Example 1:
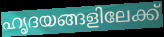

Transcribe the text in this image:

ഹൃദയങ്ങളിലേക്ക്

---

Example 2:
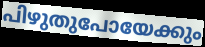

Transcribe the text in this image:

പിഴുതുപോയേക്കും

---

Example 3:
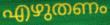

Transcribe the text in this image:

എഴുതണം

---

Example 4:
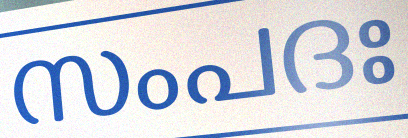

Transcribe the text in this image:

സംപദഃ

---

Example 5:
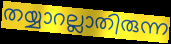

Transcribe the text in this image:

തയ്യാറല്ലാതിരുന്ന